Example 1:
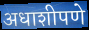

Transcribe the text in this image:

अधाशीपणे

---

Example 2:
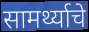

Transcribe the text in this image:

सामर्थ्याचे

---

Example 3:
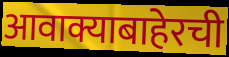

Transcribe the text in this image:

आवाक्याबाहेरची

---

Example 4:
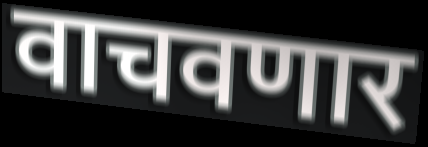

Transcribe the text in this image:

वाचवणार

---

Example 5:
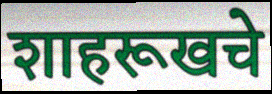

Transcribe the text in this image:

शाहरूखचे